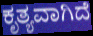
ಕೃತ್ಯವಾಗಿದೆ